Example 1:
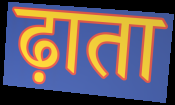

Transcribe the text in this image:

ढ़ाता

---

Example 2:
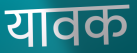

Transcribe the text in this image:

यावक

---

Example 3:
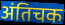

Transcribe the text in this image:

अंतिचक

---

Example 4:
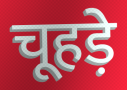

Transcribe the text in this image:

चूहड़े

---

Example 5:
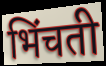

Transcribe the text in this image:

भिंचती